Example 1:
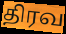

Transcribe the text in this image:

திரவ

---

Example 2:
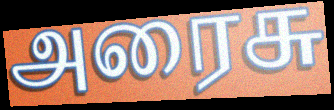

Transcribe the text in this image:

அரைசு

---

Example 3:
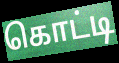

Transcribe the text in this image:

கொட்டி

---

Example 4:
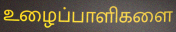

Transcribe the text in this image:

உழைப்பாளிகளை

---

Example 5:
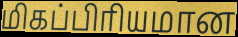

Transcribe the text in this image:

மிகப்பிரியமான